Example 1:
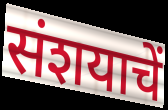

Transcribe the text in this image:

संशयाचें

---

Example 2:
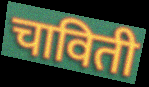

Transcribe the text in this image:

चाविती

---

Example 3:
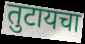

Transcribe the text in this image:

तुटायचा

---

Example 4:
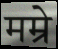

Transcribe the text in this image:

मम्रे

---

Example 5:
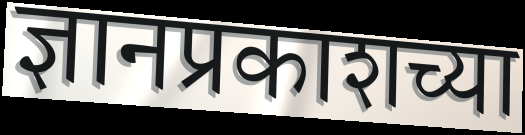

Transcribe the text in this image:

ज्ञानप्रकाशच्या